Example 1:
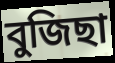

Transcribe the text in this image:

বুজিছা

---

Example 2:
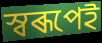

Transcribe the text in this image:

স্বৰূপেই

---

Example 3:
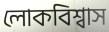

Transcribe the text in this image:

লোকবিশ্বাস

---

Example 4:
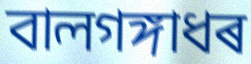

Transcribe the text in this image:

বালগঙ্গাধৰ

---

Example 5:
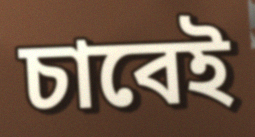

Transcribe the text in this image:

চাবেই